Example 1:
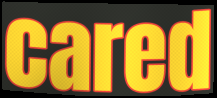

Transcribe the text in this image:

cared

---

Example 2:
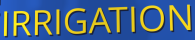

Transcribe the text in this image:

IRRIGATION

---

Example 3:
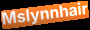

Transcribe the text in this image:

Mslynnhair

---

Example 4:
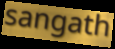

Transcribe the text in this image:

sangath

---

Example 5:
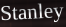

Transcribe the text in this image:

Stanley